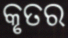
କୃତର